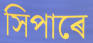
সিপাৰে